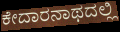
ಕೇದಾರನಾಥದಲ್ಲಿ